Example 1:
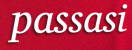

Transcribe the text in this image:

passasi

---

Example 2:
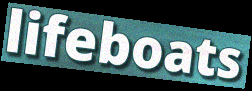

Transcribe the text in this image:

lifeboats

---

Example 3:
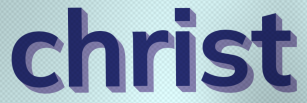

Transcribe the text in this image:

christ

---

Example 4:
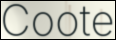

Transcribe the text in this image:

Coote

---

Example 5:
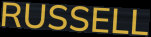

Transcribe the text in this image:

RUSSELL